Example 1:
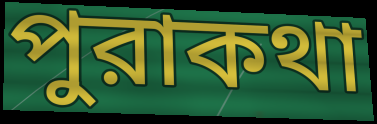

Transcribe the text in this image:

পুরাকথা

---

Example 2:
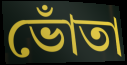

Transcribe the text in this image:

ভোঁতা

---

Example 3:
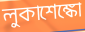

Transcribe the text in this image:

লুকাশেঙ্কো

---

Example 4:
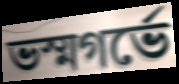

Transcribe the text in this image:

ভস্মগর্ভে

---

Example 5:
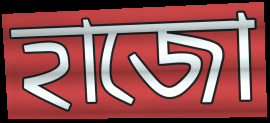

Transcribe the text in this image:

হাজো